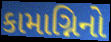
કામાગ્નિનો